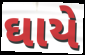
ઘાયે